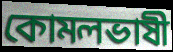
কোমলভাষী